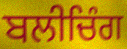
ਬਲੀਚਿੰਗ